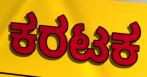
ಕರಟಕ